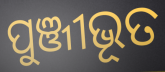
ପୁଞ୍ଜୀଭୂତ